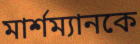
মার্শম্যানকে